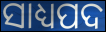
ସାଧ୍ଯପଦ